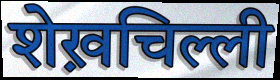
शेख़चिल्ली